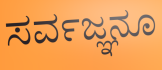
ಸರ್ವಜ್ಞನೂ